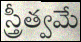
స్త్రీత్వమే